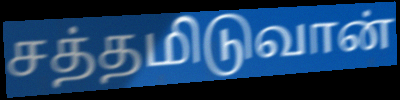
சத்தமிடுவான்